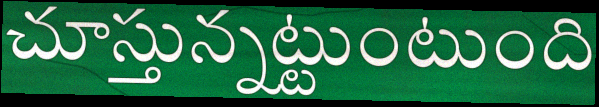
చూస్తున్నట్టుంటుంది